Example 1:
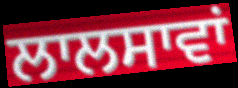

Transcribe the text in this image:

ਲਾਲਸਾਵਾਂ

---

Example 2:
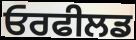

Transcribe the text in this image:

ਓਰਫੀਲਡ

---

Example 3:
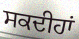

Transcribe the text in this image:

ਸਕਦੀਹਾਂ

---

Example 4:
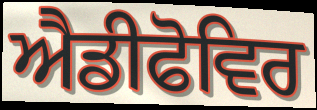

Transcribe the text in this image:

ਐਡੀਫੋਵਿਰ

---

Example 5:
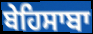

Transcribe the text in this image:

ਬੇਹਿਸਾਬਾ